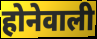
होनेवाली